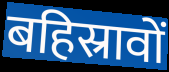
बहिस्रावों